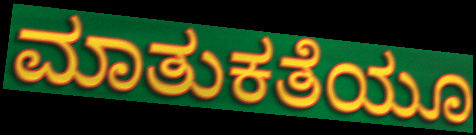
ಮಾತುಕತೆಯೂ